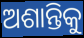
ଅଶାନ୍ତିକୁ